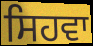
ਸਿਹਵਾ